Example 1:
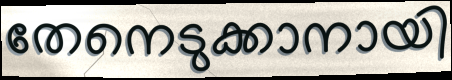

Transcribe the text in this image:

തേനെടുക്കാനായി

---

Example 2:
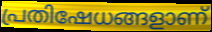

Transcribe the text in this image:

പ്രതിഷേധങ്ങളാണ്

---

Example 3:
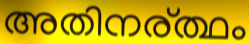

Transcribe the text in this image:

അതിനര്ത്ഥം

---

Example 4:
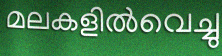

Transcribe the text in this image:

മലകളിൽവെച്ചു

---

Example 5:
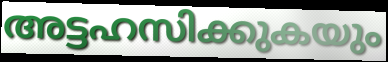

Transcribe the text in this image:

അട്ടഹസിക്കുകയും